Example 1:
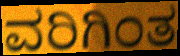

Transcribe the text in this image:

ವರಿಗಿಂತ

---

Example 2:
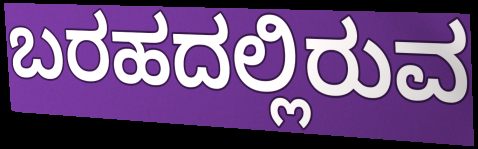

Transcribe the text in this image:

ಬರಹದಲ್ಲಿರುವ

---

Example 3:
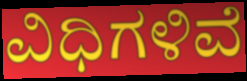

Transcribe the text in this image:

ವಿಧಿಗಳಿವೆ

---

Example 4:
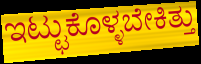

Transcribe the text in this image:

ಇಟ್ಟುಕೊಳ್ಳಬೇಕಿತ್ತು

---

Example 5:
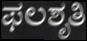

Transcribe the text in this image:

ಫಲಶೃತಿ